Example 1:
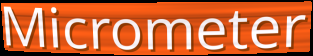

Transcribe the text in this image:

Micrometer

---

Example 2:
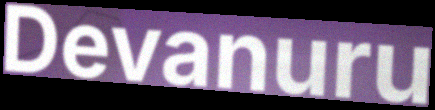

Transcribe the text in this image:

Devanuru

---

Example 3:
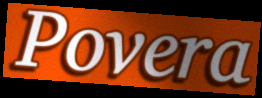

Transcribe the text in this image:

Povera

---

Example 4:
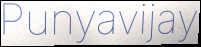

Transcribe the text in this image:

Punyavijay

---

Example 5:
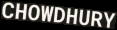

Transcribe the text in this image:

CHOWDHURY